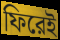
ফিরেই